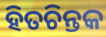
ହିତଚିନ୍ତକ